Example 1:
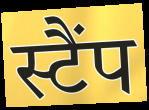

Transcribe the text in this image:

स्टैंप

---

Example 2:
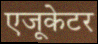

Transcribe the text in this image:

एजूकेटर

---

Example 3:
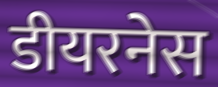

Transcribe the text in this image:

डीयरनेस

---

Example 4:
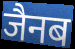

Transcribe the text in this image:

जैनब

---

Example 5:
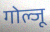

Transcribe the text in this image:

गोल्जू